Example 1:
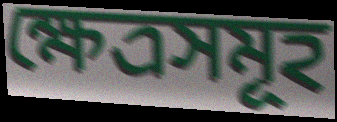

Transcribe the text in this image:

ক্ষেত্ৰসমূহ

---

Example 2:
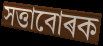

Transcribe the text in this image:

সত্তাবোৰক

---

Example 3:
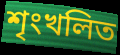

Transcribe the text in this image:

শৃংখলিত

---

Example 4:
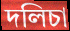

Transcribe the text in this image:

দলিচা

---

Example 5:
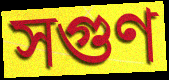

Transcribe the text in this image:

সগুণ